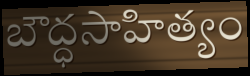
బౌద్ధసాహిత్యం